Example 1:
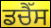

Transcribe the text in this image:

ਡਚੈੱਸ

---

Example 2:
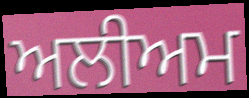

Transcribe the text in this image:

ਅਲੀਅਮ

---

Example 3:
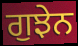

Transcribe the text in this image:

ਗੁਝੇਨ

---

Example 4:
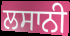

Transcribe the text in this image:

ਲਸਾਨੀ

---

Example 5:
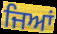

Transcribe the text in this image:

ਜਿਆਂ